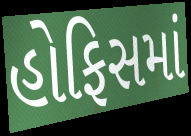
હોફિસમાં